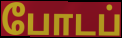
போடப்